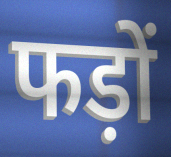
फड़ों